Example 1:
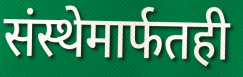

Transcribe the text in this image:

संस्थेमार्फतही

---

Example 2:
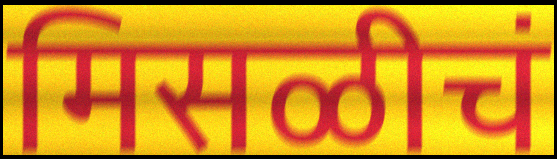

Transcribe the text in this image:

मिसळीचं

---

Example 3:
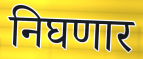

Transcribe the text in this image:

निघणार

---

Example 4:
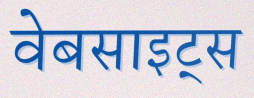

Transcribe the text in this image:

वेबसाइट्स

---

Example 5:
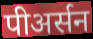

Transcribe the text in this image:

पीअर्सन